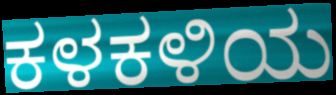
ಕಳಕಳಿಯ